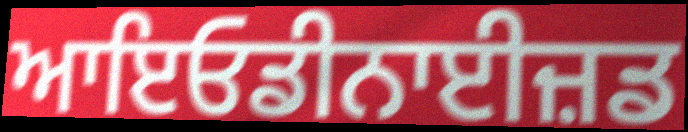
ਆਇਓਡੀਨਾਈਜ਼ਡ